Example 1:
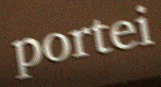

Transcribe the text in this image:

portei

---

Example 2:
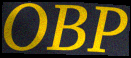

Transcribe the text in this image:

OBP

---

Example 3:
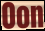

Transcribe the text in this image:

Oon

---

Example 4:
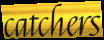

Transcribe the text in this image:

catchers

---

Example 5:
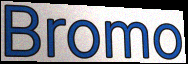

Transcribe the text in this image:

Bromo